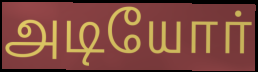
அடியோர்